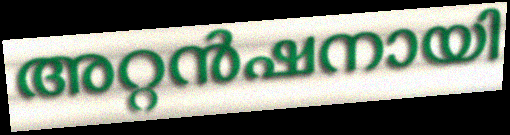
അറ്റൻഷനായി